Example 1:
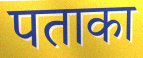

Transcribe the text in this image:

पताका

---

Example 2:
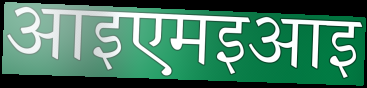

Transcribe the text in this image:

आइएमइआइ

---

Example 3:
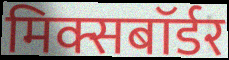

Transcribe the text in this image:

मिक्सबॉर्डर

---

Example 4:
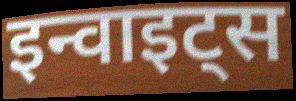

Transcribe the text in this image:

इन्वाइट्स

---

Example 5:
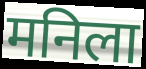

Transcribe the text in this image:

मनिला